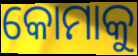
କୋମାକୁ